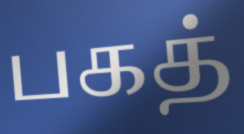
பகத்